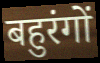
बहुरंगों